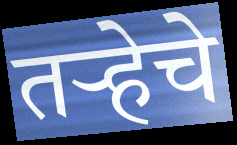
तर्‍हेचे